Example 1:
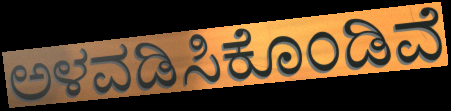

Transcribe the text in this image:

ಅಳವಡಿಸಿಕೊಂಡಿವೆ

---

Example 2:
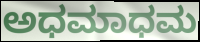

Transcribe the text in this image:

ಅಧಮಾಧಮ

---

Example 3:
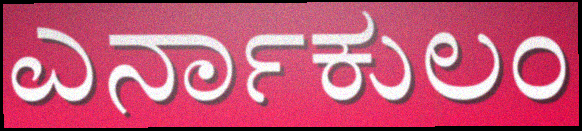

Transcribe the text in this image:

ಎರ್ನಾಕುಲಂ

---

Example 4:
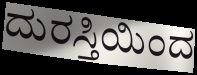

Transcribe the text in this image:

ದುರಸ್ತಿಯಿಂದ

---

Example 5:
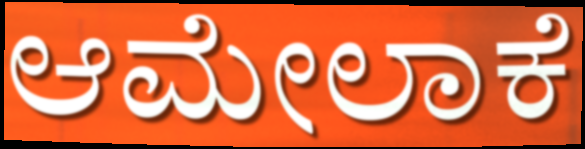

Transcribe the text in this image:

ಆಮೇಲಾಕೆ